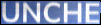
UNCHE